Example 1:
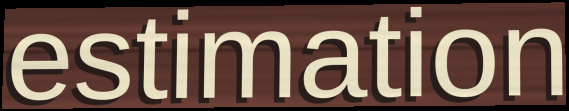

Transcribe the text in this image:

estimation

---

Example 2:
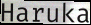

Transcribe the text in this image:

Haruka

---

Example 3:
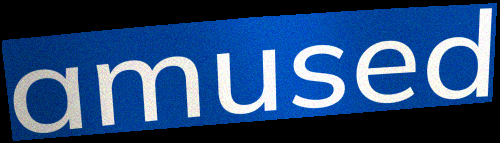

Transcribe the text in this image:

amused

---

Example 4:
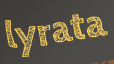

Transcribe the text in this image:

lyrata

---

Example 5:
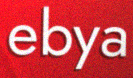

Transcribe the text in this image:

ebya